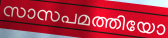
സാസപമത്തിയോ